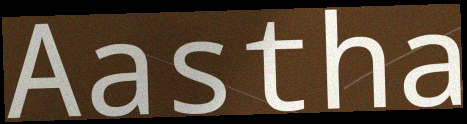
Aastha